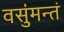
वसु॑मन्तं